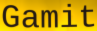
Gamit